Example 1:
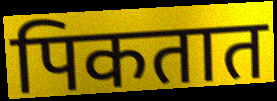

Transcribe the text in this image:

पिकतात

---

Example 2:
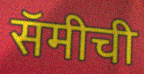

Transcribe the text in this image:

सॅमीची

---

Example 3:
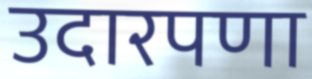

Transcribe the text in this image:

उदारपणा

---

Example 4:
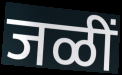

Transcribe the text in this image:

जळीं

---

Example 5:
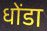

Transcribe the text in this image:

धोंडा